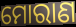
ମୋରାଣ